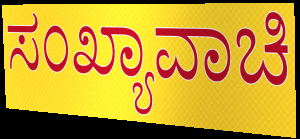
ಸಂಖ್ಯಾವಾಚಿ